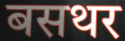
बसथर